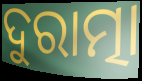
ଦୁରାତ୍ମା